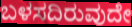
ಬಳಸದಿರುವುದೇ